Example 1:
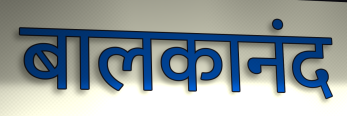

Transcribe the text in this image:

बालकानंद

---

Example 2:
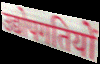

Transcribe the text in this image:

उद्योपगतियों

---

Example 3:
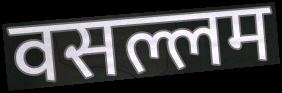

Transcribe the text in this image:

वसल्लम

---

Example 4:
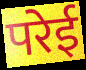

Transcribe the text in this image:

परेई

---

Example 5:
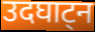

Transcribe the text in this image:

उदघाट्न